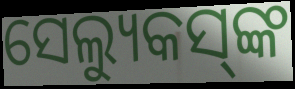
ସେଲ୍ୟୁକସ୍‌ଙ୍କ